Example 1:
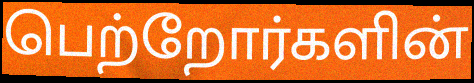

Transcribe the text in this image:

பெற்றோர்களின்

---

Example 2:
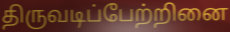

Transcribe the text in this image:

திருவடிப்பேற்றினை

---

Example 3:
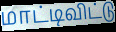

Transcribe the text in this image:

மாட்டிவிட்டு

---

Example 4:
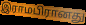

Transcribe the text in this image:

இராமபிரானது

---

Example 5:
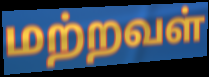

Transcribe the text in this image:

மற்றவள்